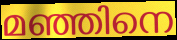
മഞ്ഞിനെ